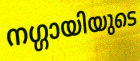
നഗ്ഗായിയുടെ